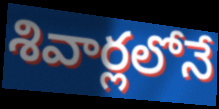
శివార్లలోనే